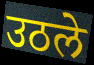
उठले